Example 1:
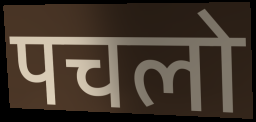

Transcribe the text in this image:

पचलो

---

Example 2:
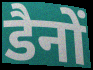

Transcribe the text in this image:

डैनों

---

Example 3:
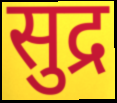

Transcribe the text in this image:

सुद्र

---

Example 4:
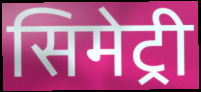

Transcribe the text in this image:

सिमेट्री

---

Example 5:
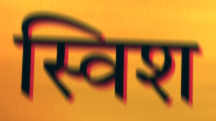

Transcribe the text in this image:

स्विश